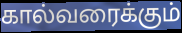
கால்வரைக்கும்